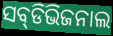
ସବ୍‌ଡିଭିଜନାଲ